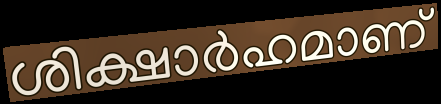
ശിക്ഷാർഹമാണ്